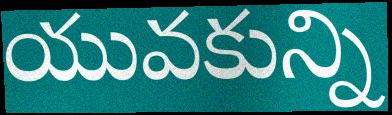
యువకున్ని